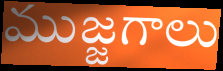
ముజ్జగాలు